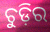
ଚୁଡ଼ିର